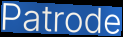
Patrode